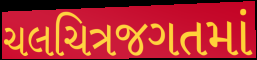
ચલચિત્રજગતમાં